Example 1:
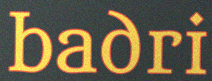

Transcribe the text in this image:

badri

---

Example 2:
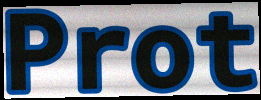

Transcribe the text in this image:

Prot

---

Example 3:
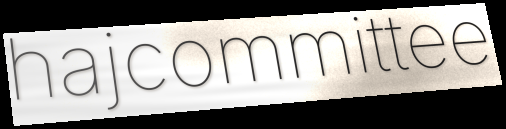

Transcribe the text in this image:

hajcommittee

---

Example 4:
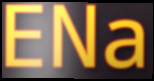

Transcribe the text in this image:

ENa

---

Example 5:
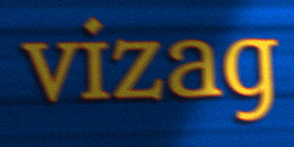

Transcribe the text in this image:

vizag